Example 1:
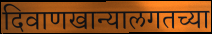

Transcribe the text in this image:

दिवाणखान्यालगतच्या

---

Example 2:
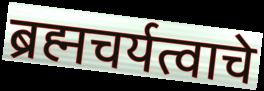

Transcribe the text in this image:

ब्रह्मचर्यत्वाचे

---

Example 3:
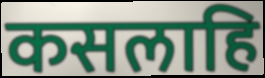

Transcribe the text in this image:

कसलाहि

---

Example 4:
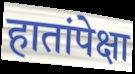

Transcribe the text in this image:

हातांपेक्षा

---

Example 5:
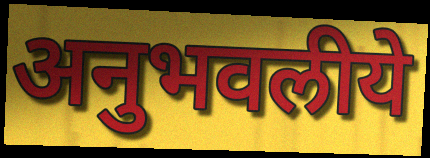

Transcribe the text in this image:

अनुभवलीये